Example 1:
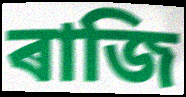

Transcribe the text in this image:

ৰাজি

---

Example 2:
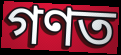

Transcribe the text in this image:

গণত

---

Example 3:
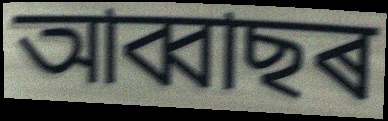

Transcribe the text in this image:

আব্বাছৰ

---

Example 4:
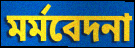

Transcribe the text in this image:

মৰ্মবেদনা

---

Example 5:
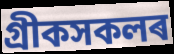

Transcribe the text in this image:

গ্ৰীকসকলৰ